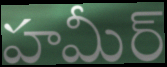
హమీర్